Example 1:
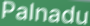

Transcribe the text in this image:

Palnadu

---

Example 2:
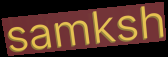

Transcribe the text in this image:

samksh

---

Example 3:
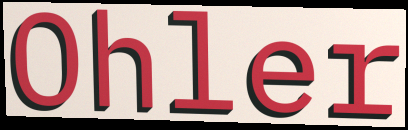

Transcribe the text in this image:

Ohler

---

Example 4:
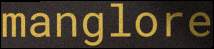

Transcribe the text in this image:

manglore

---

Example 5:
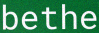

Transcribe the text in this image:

bethe